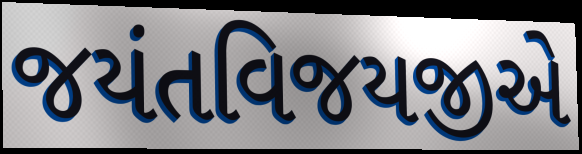
જયંતવિજયજીએ